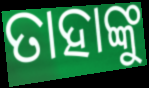
ତାହାଙ୍କୁ